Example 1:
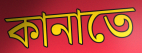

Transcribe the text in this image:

কানাতে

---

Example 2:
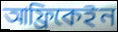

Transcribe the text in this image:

আফ্রিকেইন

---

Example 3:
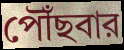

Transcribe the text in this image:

পৌঁছবার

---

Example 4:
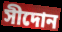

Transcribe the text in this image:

সীদোন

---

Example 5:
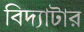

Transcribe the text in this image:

বিদ্যাটার